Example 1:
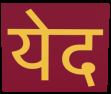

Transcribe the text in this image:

येद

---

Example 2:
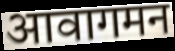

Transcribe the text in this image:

आवागमन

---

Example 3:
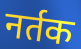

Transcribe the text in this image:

नर्तक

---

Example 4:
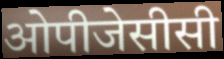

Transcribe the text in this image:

ओपीजेसीसी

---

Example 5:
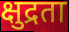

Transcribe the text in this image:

क्षुद्रता